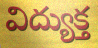
విద్యుక్త